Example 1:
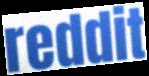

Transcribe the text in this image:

reddit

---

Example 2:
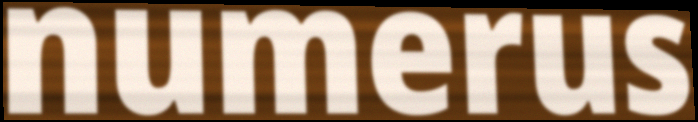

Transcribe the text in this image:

numerus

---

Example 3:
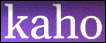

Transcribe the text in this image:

kaho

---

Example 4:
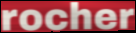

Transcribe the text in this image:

rocher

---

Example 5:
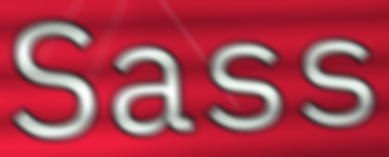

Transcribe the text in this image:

Sass